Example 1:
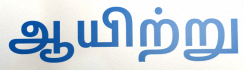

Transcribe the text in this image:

ஆயிற்று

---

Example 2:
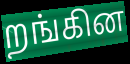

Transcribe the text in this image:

றங்கின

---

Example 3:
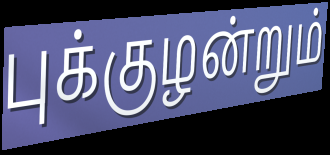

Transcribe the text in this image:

புக்குழன்றும்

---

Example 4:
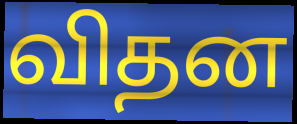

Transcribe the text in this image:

விதன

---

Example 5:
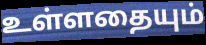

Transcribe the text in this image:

உள்ளதையும்